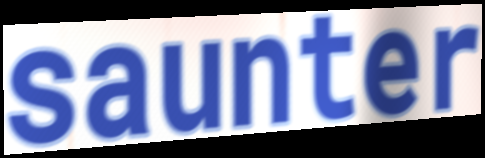
saunter